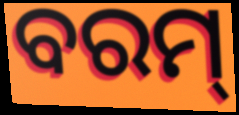
ବରମ୍